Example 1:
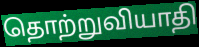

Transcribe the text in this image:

தொற்றுவியாதி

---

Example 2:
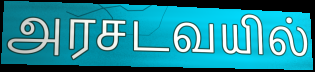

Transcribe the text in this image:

அரசடவயில்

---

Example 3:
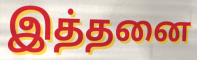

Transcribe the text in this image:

இத்தனை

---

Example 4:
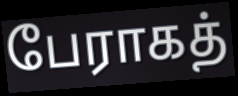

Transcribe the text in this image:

பேராகத்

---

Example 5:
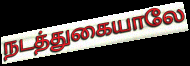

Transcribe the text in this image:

நடத்துகையாலே